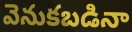
వెనుకబడినా